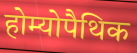
होम्योपैथिक